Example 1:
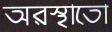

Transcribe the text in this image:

অৱস্থাতো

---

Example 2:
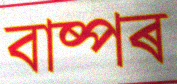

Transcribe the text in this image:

বাষ্পৰ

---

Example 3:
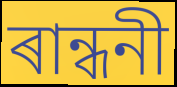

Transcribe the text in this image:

ৰান্ধনী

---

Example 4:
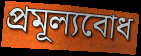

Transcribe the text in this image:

প্ৰমূল্যবোধ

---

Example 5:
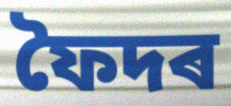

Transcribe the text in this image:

ফৈদৰ